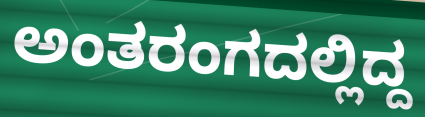
ಅಂತರಂಗದಲ್ಲಿದ್ದ